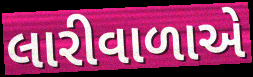
લારીવાળાએ